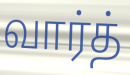
வார்த்